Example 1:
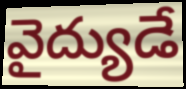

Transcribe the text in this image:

వైద్యుడే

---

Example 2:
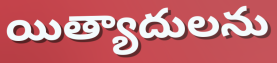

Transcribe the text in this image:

యిత్యాదులను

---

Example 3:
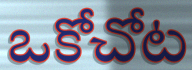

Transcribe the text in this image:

ఒకోచోట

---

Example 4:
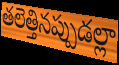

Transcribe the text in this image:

తలెత్తినప్పుడల్లా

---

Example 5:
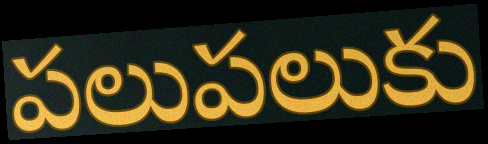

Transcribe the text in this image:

పలుపలుకు